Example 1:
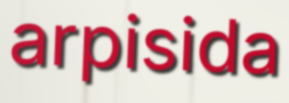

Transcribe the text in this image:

arpisida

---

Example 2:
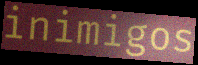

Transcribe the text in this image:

inimigos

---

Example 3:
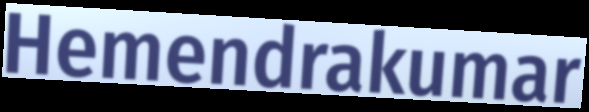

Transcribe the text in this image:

Hemendrakumar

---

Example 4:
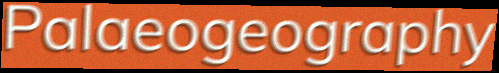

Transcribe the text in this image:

Palaeogeography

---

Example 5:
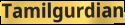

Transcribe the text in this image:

Tamilgurdian